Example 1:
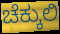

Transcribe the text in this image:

ಚೆಕ್ಕುಲಿ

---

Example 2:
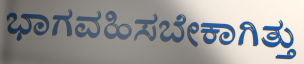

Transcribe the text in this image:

ಭಾಗವಹಿಸಬೇಕಾಗಿತ್ತು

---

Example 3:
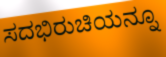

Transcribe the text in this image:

ಸದಭಿರುಚಿಯನ್ನೂ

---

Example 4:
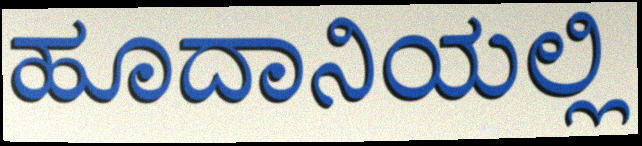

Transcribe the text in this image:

ಹೂದಾನಿಯಲ್ಲಿ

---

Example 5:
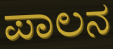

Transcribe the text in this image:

ಪಾಲನ